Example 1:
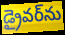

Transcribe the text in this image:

డ్రైవర్‌ను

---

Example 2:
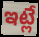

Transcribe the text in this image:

ఇట్లే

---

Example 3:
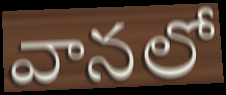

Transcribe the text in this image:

వానలో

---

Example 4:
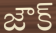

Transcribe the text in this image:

జౌక్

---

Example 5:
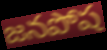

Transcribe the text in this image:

జనపోష